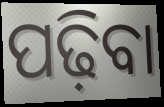
ପଢ଼ିବା